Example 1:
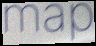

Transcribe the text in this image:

map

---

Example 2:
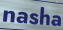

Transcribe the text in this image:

nasha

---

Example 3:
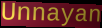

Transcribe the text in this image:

Unnayan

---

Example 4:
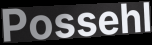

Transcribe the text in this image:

Possehl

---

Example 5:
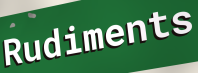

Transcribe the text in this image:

Rudiments